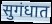
सुगंधात